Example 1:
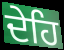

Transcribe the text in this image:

ਦੇਹਿ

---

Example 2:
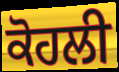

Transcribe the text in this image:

ਕੋਹਲੀ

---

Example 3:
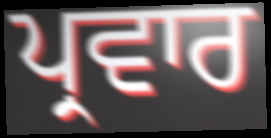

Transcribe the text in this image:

ਪ੍ਰਵਾਰ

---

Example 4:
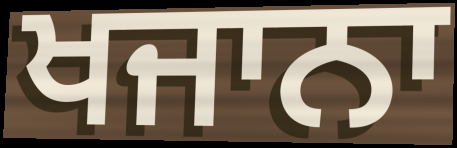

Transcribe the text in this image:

ਖਜਾਨਾ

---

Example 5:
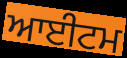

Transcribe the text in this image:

ਆਈਟਮ